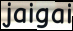
jaigai